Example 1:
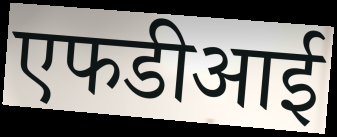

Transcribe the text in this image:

एफडीआई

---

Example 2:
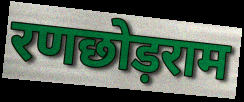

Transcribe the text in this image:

रणछोड़राम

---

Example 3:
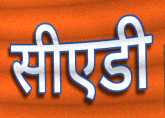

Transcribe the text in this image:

सीएडी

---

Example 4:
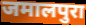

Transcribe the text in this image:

जमालपुरा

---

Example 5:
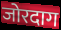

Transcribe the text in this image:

जोरदाग